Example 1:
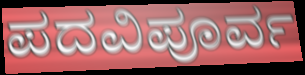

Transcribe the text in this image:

ಪದವಿಪೂರ್ವ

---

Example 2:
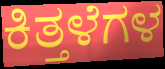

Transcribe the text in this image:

ಕಿತ್ತಳೆಗಳ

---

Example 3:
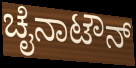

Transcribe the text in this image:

ಚೈನಾಟೌನ್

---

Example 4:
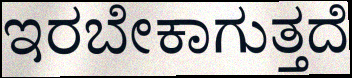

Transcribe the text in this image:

ಇರಬೇಕಾಗುತ್ತದೆ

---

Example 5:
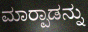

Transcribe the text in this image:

ಮಾರ‍್ಪಾಡನ್ನು